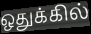
ஒதுக்கில்